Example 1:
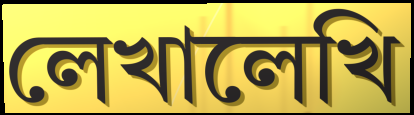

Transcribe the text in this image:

লেখালেখি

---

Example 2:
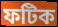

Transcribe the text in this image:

ফটিক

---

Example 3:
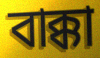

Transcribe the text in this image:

বাক্কা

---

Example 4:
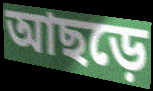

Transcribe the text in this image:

আছড়ে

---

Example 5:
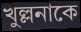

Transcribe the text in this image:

খুল্লনাকে